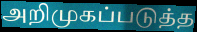
அறிமுகப்படுத்த